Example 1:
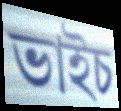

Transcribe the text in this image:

ভাইচ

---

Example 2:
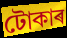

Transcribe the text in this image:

টোকাৰ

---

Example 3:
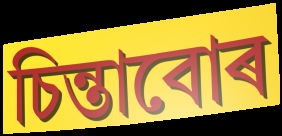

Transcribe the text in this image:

চিন্তাবোৰ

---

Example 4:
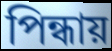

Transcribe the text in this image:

পিন্ধায়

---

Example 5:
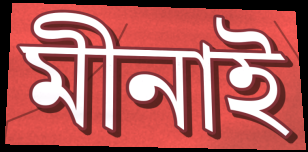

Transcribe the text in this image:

মীনাই